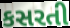
કસરતી